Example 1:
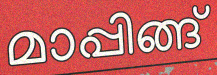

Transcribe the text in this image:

മാപ്പിങ്ങ്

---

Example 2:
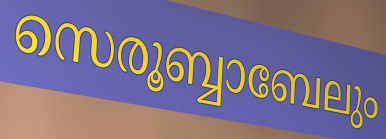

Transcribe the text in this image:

സെരൂബ്ബാബേലും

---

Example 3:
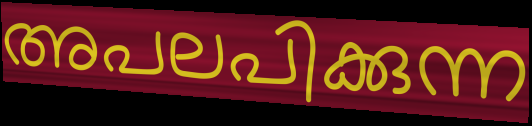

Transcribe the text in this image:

അപലപിക്കുന്ന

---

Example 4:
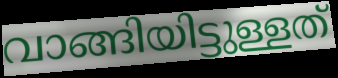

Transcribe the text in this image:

വാങ്ങിയിട്ടുള്ളത്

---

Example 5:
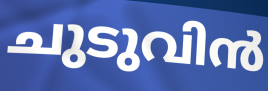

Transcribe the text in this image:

ചുടുവിൻ